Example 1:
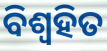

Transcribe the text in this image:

ବିଶ୍ଵହିତ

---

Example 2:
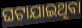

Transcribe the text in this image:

ଘଟାଯାଇଥିବା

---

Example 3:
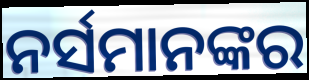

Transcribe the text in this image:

ନର୍ସମାନଙ୍କର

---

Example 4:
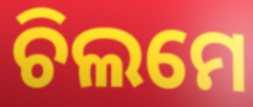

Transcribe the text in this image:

ଚିଲମେ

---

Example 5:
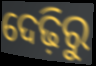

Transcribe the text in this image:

ଦେଢ଼ିରୁ